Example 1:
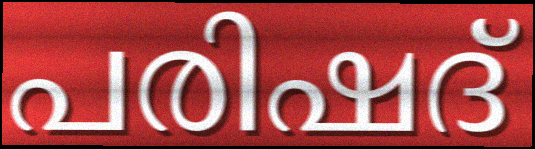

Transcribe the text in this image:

പരിഷദ്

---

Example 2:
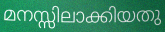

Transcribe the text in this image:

മനസ്സിലാക്കിയതു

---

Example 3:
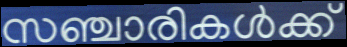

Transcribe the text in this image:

സഞ്ചാരികൾക്ക്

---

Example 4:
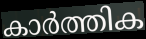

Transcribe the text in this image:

കാർത്തിക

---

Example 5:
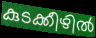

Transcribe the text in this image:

കുടക്കീഴിൽ